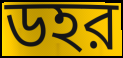
ডহর